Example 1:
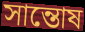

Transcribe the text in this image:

সান্তোষ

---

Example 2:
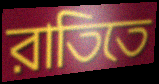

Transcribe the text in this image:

রাতিতে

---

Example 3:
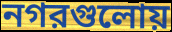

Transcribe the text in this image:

নগরগুলোয়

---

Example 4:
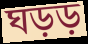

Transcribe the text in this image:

ঘড়ড়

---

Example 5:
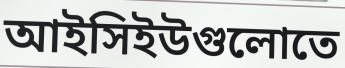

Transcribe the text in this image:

আইসিইউগুলোতে